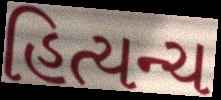
હિત્યન્ચ